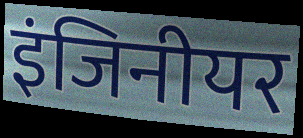
इंजिनीयर